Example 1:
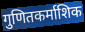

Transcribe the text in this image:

गुणितकर्माशिक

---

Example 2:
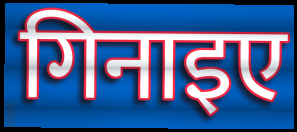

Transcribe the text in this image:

गिनाइए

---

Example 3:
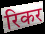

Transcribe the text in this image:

रिकर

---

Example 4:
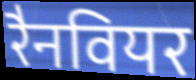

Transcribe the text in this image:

रैनवियर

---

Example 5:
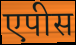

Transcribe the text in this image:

एपीस